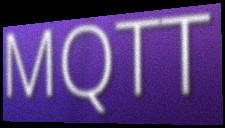
MQTT